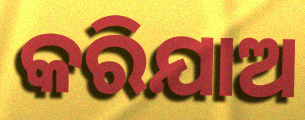
କରିଯାଅ